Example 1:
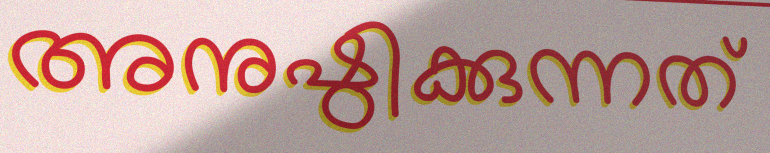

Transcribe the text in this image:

അനുഷ്ഠിക്കുന്നത്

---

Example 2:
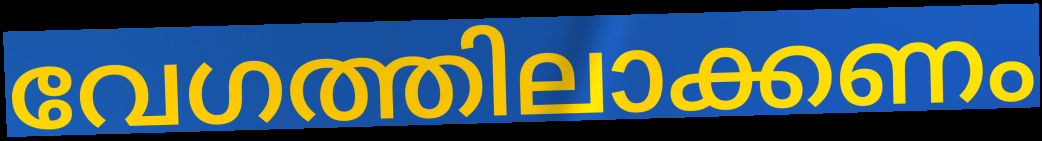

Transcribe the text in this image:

വേഗത്തിലാക്കണം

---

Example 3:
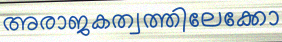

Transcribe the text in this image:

അരാജകത്വത്തിലേക്കോ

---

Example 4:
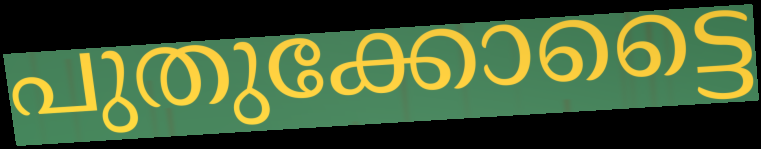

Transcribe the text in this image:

പുതുക്കോട്ടൈ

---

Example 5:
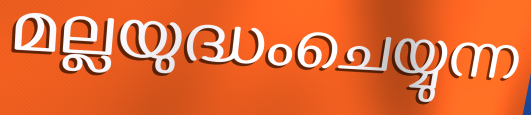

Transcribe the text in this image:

മല്ലയുദ്ധംചെയ്യുന്ന